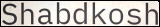
Shabdkosh